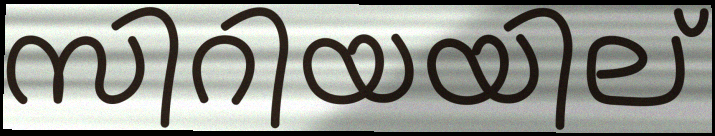
സിറിയയില്